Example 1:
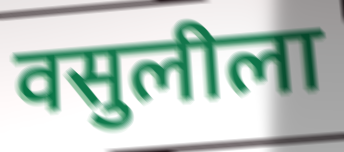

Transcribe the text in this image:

वसुलीला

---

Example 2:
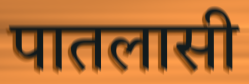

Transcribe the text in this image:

पातलासी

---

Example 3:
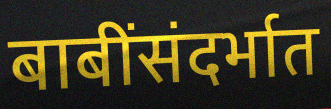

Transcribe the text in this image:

बाबींसंदर्भात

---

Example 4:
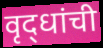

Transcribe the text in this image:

वृद्धांची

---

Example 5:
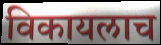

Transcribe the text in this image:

विकायलाच